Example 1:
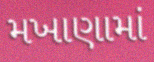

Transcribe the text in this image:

મખાણામાં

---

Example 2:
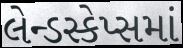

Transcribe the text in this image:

લેન્ડસ્કેપ્સમાં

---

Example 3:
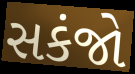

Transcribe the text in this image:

સકંજો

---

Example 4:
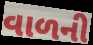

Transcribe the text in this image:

વાળની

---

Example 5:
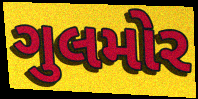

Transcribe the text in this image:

ગુલમોર